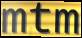
mtm